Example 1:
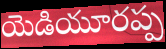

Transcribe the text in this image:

యెడియూరప్ప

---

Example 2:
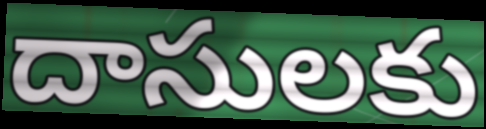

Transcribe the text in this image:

దాసులకు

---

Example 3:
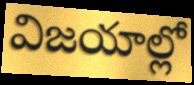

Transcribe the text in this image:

విజయాల్లో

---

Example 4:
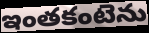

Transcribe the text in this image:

ఇంతకంటెను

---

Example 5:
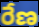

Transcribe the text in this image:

రేణ